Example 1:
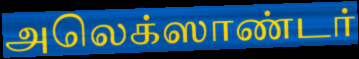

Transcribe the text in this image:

அலெக்ஸாண்டர்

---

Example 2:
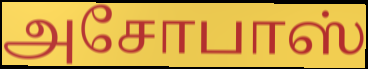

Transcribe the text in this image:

அசோபாஸ்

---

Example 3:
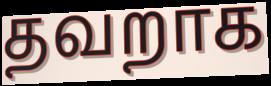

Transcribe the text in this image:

தவறாக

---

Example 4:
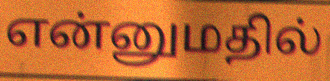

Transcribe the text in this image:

என்னுமதில்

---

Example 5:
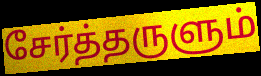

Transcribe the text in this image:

சேர்த்தருளும்